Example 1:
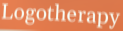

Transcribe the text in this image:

Logotherapy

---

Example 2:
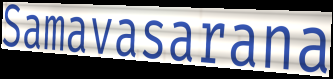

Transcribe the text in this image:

Samavasarana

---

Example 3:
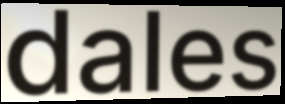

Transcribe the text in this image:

dales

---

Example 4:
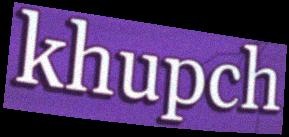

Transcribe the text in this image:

khupch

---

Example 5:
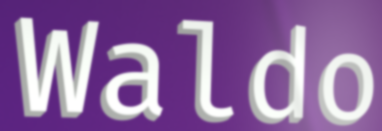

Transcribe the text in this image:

Waldo